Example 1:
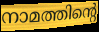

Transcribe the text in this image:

നാമത്തിന്റെ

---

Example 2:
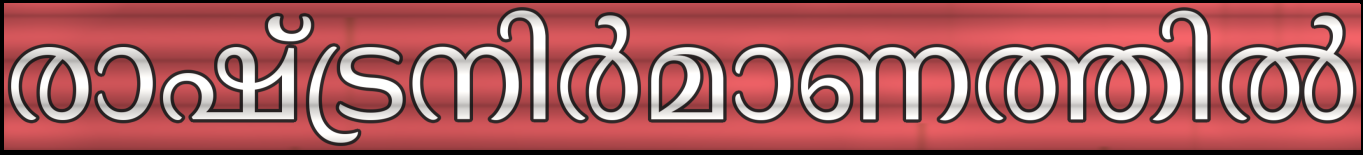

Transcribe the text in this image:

രാഷ്ട്രനിർമാണത്തിൽ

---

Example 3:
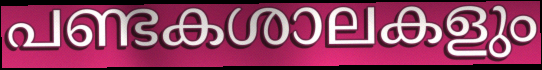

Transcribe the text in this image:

പണ്ടകശാലകളും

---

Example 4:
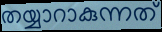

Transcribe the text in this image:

തയ്യാറാകുന്നത്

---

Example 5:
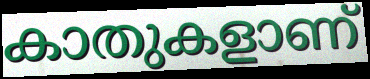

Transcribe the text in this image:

കാതുകളാണ്